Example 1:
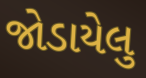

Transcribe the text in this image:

જોડાયેલુ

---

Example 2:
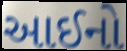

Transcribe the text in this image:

આઈનો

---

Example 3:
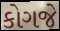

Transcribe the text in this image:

કોગજે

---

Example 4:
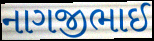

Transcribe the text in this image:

નાગજીભાઈ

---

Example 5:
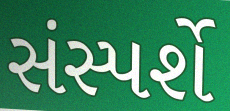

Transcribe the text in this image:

સંસ્પર્શે